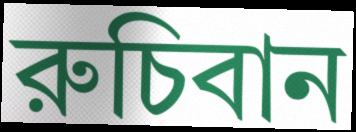
রুচিবান